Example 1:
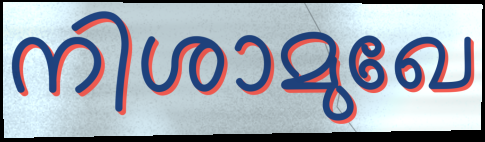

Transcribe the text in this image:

നിശാമുഖേ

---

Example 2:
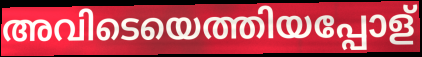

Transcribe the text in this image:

അവിടെയെത്തിയപ്പോള്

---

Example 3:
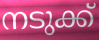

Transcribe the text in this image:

നടുക്ക്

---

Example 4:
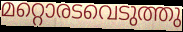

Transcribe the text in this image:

മറ്റൊരടവെടുത്തു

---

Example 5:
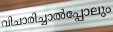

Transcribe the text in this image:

വിചാരിച്ചാൽപ്പോലും